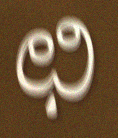
ಛಿ